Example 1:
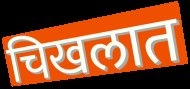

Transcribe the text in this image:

चिखलात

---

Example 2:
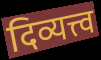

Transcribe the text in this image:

दिव्यत्त्व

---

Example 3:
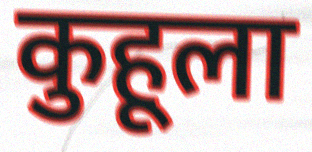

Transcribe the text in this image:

कुहूला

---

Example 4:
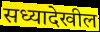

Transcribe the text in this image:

सध्यादेखील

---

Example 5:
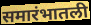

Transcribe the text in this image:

समारंभातली